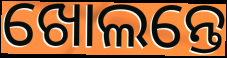
ଖୋଲନ୍ତେ